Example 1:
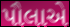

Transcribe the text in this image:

પૌલાએ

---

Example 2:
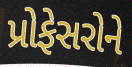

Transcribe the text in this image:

પ્રોફેસરોને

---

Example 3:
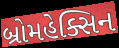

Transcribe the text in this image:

બ્રોમહેક્સિન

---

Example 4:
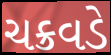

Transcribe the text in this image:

ચક્રવડે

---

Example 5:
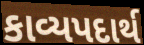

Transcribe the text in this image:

કાવ્યપદાર્થ